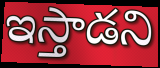
ఇస్తాడని